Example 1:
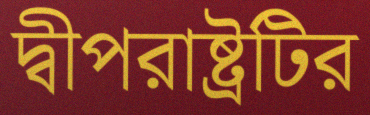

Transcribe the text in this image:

দ্বীপরাষ্ট্রটির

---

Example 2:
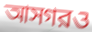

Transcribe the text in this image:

আসগরও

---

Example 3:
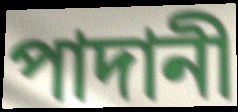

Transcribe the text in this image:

পাদানী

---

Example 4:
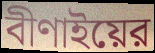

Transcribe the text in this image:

বীণাইয়ের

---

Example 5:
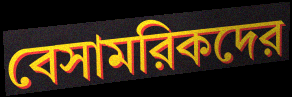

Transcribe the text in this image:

বেসামরিকদের